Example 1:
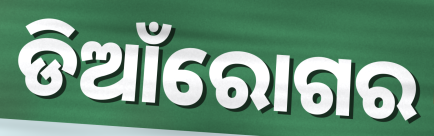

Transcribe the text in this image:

ଡିଆଁରୋଗର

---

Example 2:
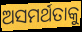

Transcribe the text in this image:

ଅସମର୍ଥତାକୁ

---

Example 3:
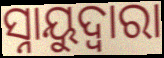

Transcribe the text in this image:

ସ୍ନାୟୁଦ୍ଵାରା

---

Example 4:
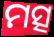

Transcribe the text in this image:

ମତ୍ସ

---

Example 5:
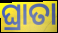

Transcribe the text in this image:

ଘ୍ରାତା